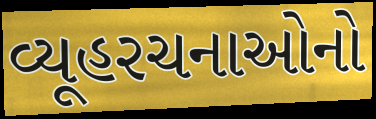
વ્યૂહરચનાઓનો